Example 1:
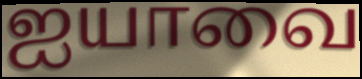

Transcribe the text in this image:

ஐயாவை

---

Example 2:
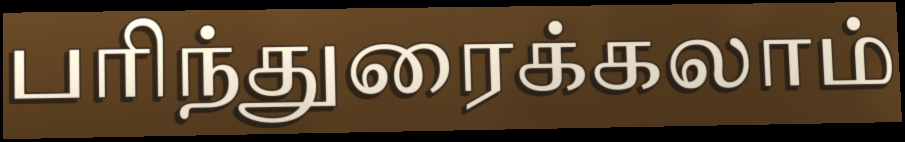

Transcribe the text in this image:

பரிந்துரைக்கலாம்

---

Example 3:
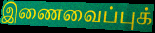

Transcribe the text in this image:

இணைவைப்புக்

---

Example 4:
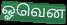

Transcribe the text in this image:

ஓவென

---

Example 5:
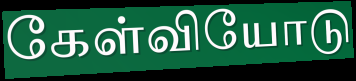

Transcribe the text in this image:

கேள்வியோடு